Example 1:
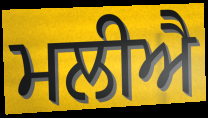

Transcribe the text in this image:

ਮਲੀਐ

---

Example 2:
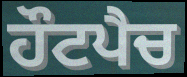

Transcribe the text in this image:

ਹੌਟਪੈਚ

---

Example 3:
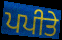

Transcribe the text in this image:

ਪਪੀਤੇ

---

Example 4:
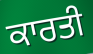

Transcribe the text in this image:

ਕਾਰਤੀ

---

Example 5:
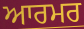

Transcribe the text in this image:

ਆਰਮਰ